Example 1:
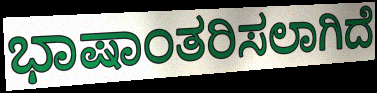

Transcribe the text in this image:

ಭಾಷಾಂತರಿಸಲಾಗಿದೆ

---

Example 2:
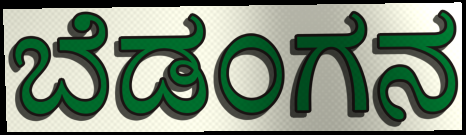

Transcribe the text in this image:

ಬೆಡಂಗನ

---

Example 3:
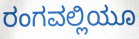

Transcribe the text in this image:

ರಂಗವಲ್ಲಿಯೂ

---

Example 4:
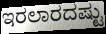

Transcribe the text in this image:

ಇರಲಾರದಷ್ಟು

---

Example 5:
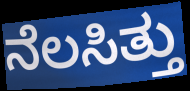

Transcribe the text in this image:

ನೆಲಸಿತ್ತು